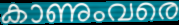
കാണുംവരെ